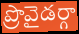
ప్రొవైడర్గా